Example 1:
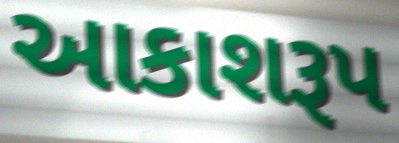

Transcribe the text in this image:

આકાશરૂપ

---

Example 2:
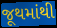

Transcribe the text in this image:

જૂથમાંથી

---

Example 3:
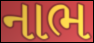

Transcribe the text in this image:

નાભ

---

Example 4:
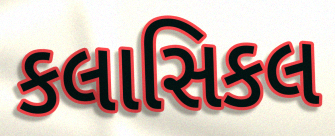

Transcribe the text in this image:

કલાસિકલ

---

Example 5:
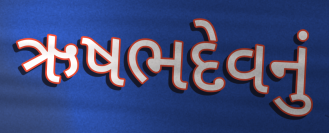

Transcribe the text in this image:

ઋષભદેવનું